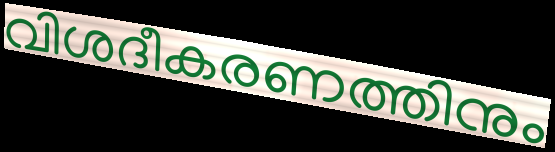
വിശദീകരണത്തിനും